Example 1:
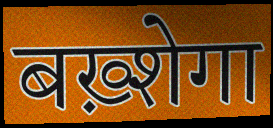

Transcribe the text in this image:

बख़्शेगा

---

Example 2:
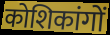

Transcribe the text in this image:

कोशिकांगों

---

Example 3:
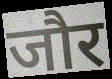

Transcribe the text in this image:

जौर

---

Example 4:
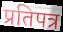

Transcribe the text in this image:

प्रतिपत्र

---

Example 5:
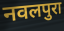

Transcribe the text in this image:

नवलपुरा